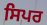
ਸਿਪਰ